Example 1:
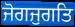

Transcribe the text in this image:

ਜੋਗਜੁਗਤਿ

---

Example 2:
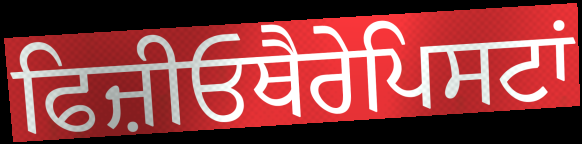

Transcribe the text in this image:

ਫਿਜ਼ੀਓਥੈਰੇਪਿਸਟਾਂ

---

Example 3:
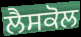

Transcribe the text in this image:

ਲੈਸਕੋਲ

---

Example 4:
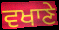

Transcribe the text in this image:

ਵਖਾਣੇ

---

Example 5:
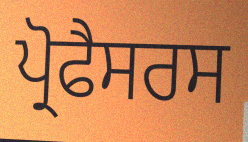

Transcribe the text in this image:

ਪ੍ਰੋਫੈਸਰਸ